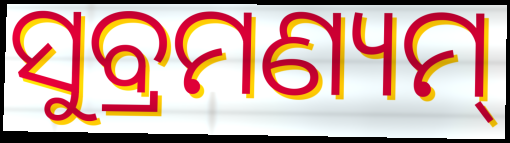
ସୁବ୍ରମଣ୍ୟମ୍